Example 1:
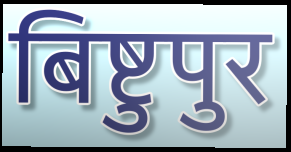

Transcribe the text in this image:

बिष्टुपुर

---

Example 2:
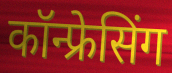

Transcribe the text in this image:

कॉन्फ्रेसिंग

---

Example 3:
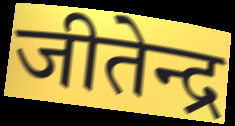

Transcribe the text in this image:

जीतेन्द्र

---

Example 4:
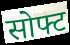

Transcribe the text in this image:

सोफ्ट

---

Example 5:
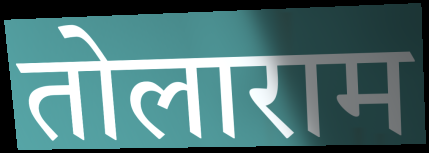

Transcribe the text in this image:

तोलाराम